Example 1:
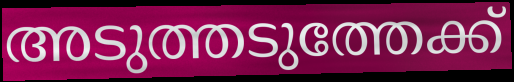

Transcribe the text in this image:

അടുത്തടുത്തേക്ക്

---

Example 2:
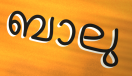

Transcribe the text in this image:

ബാലു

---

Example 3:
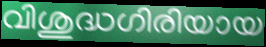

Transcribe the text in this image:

വിശുദ്ധഗിരിയായ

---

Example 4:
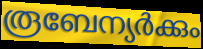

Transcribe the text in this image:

രൂബേന്യർക്കും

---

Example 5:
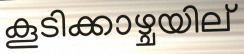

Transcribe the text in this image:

കൂടിക്കാഴ്ചയില്